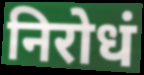
निरोधं